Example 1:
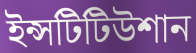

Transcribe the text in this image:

ইন্সটিটিউশান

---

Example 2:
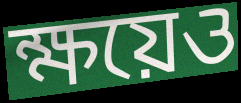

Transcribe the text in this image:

ক্ষয়েও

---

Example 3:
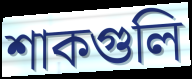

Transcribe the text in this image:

শাকগুলি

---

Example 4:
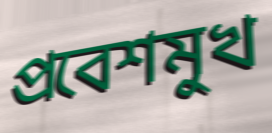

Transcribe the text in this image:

প্রবেশমুখ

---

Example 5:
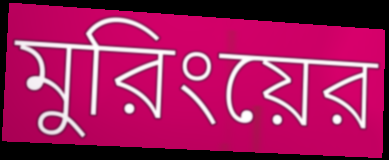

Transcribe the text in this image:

মুরিংয়ের